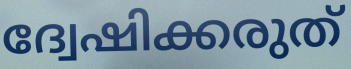
ദ്വേഷിക്കരുത്